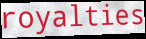
royalties